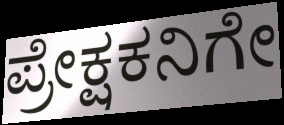
ಪ್ರೇಕ್ಷಕನಿಗೇ